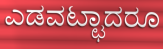
ಎಡವಟ್ಟಾದರೂ